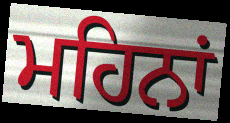
ਮਹਿਨਾਂ